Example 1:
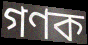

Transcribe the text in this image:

গণক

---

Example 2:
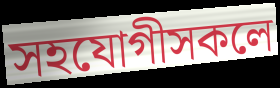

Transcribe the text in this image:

সহযোগীসকলে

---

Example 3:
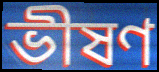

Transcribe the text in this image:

ভীষণ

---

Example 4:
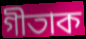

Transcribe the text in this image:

গীতাক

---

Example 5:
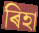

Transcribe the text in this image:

ৰিহা